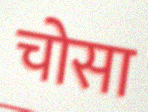
चोसा